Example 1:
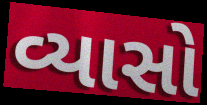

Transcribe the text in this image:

વ્યાસો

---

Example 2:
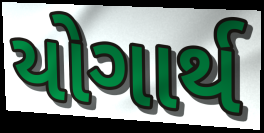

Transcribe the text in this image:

યોગાર્થ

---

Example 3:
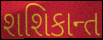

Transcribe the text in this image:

શશિકાન્ત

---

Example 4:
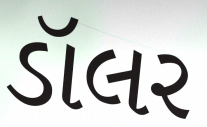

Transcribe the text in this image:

ડૉલર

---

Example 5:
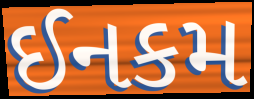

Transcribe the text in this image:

ઈનકમ